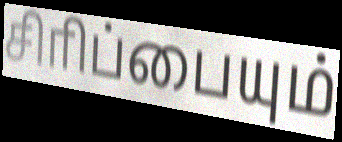
சிரிப்பையும்